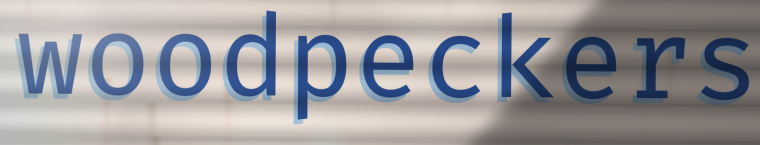
woodpeckers